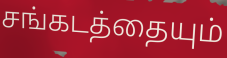
சங்கடத்தையும்